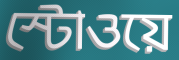
স্টোওয়ে